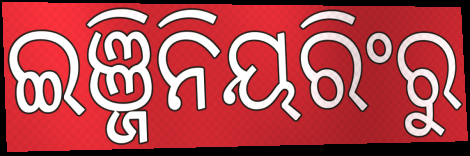
ଇଞ୍ଜିନିୟରିଂରୁ